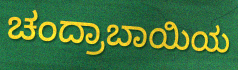
ಚಂದ್ರಾಬಾಯಿಯ